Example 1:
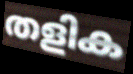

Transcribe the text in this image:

തളിക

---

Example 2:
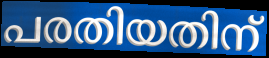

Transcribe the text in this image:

പരതിയതിന്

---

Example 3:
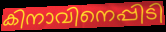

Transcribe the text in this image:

കിനാവിനെപ്പിടി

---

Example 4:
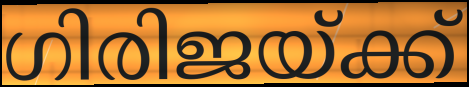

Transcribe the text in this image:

ഗിരിജയ്ക്ക്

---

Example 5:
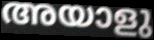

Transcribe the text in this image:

അയാളു